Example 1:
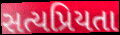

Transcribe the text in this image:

સત્યપ્રિયતા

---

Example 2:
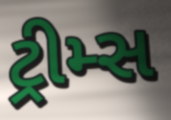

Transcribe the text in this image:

ટ્રીમ્સ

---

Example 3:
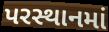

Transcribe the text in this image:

પરસ્થાનમાં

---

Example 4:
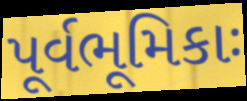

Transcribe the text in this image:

પૂર્વભૂમિકાઃ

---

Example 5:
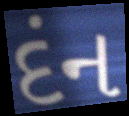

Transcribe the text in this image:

દંન